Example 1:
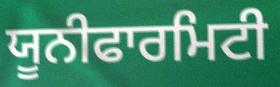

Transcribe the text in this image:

ਯੂਨੀਫਾਰਮਿਟੀ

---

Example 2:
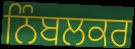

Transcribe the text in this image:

ਨਿੰਬਲਕਰ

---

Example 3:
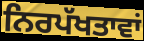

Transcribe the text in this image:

ਨਿਰਪੱਖਤਾਵਾਂ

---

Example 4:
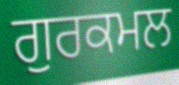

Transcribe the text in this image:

ਗੁਰਕਮਲ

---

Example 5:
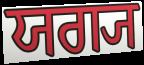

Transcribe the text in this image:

ਯਗ੍ਯ